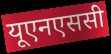
यूएनएससी